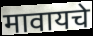
मावायचे